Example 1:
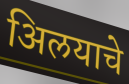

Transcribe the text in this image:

अिलयाचे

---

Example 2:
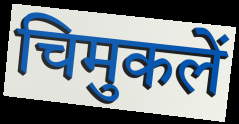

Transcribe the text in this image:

चिमुकलें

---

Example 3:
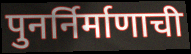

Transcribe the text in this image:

पुनर्निर्माणाची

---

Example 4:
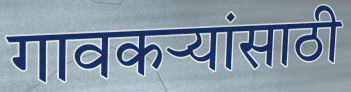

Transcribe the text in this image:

गावकऱ्यांसाठी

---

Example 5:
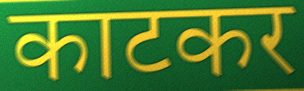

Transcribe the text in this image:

काटकर